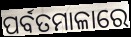
ପର୍ବତମାଳାରେ